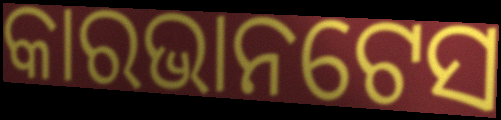
କାରଭାନଟେସ